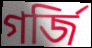
গৰ্জি